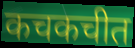
कचकचीत